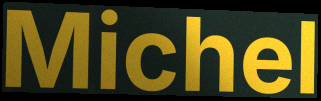
Michel